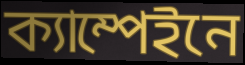
ক্যাম্পেইনে